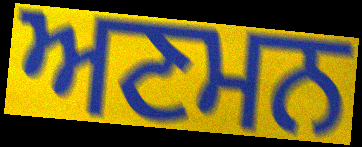
ਅਣਮਨ